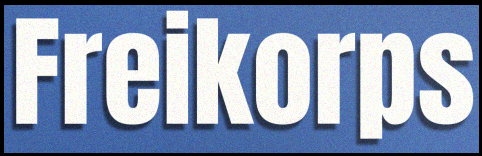
Freikorps